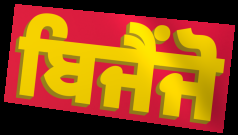
ਬਿਜੈਂਜੋ